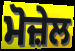
ਮੋਜ਼ੇਲ